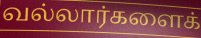
வல்லார்களைக்